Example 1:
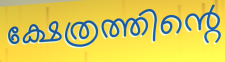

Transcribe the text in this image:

ക്ഷേത്രത്തിന്റെ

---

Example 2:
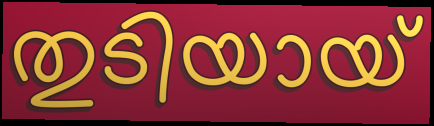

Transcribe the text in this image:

തുടിയായ്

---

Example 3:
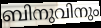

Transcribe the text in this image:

ബിനുവിനും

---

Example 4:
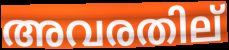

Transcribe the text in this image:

അവരതില്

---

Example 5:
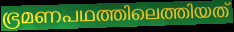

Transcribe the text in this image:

ഭ്രമണപഥത്തിലെത്തിയത്